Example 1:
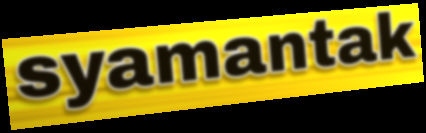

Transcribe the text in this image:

syamantak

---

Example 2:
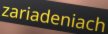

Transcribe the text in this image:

zariadeniach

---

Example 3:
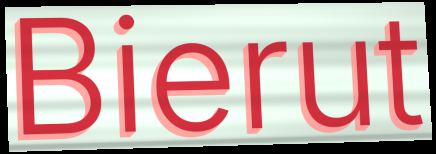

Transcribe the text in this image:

Bierut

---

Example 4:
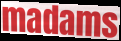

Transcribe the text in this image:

madams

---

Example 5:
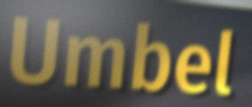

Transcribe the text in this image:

Umbel